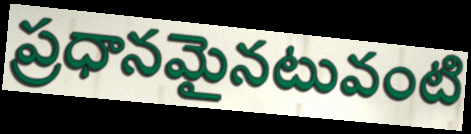
ప్రధానమైనటువంటి